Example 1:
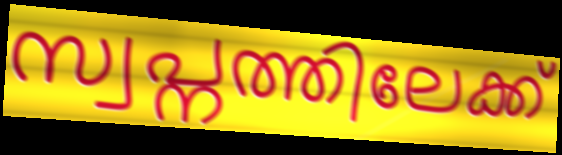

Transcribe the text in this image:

സ്വപ്നത്തിലേക്ക്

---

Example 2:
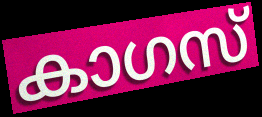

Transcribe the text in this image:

കാഗസ്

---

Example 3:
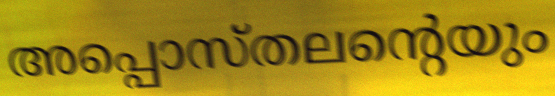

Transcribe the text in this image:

അപ്പൊസ്തലന്റെയും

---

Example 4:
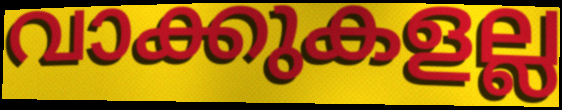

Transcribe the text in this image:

വാക്കുകളല്ല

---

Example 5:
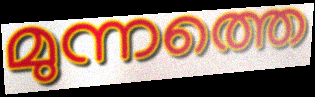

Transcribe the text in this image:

മുന്നത്തെ